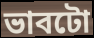
ভাবটো